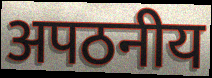
अपठनीय